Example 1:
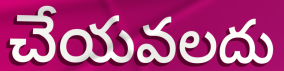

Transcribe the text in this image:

చేయవలదు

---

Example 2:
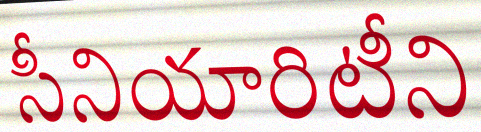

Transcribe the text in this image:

సీనియారిటీని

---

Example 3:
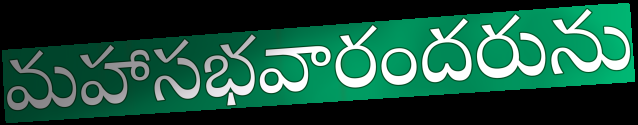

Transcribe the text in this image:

మహాసభవారందరును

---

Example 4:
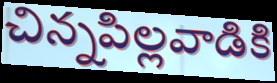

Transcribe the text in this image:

చిన్నపిల్లవాడికి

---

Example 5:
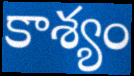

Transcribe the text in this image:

కాశ్యం